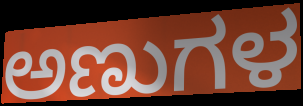
ಅಣುಗಳ